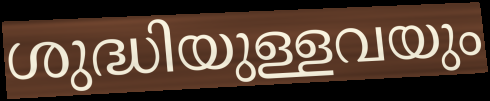
ശുദ്ധിയുള്ളവയും